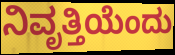
ನಿವೃತ್ತಿಯೆಂದು